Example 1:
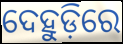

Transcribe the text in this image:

ଦେହୁଡ଼ିରେ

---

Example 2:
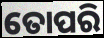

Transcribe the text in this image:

ତୋପରି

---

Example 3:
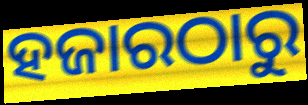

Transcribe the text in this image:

ହଜାରଠାରୁ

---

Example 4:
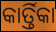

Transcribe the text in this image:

କାର୍ତ୍ତିକା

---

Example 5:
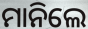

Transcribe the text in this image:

ମାନିଲେ